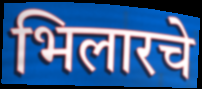
भिलारचे